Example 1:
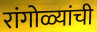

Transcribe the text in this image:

रांगोळ्यांची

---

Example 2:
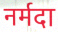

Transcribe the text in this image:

नर्मदा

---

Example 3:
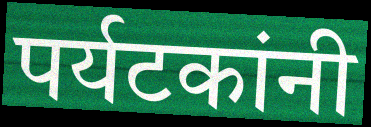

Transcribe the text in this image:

पर्यटकांनी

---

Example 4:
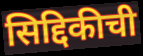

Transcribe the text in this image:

सिद्दिकीची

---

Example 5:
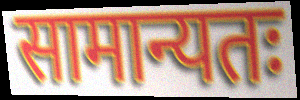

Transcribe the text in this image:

सामान्यतः